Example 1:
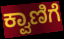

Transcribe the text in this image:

ಕ್ವಾಣಿಗೆ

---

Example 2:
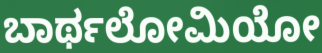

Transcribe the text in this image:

ಬಾರ್ಥಲೋಮಿಯೋ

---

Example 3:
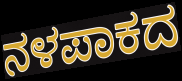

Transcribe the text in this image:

ನಳಪಾಕದ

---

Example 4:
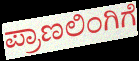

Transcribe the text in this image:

ಪ್ರಾಣಲಿಂಗಿಗೆ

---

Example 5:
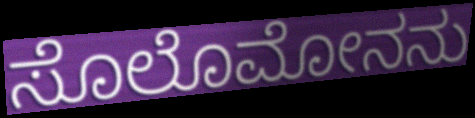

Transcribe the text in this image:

ಸೊಲೊಮೋನನು